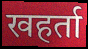
खहर्ता